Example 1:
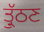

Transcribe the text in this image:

ਤ੍ਰੁੱਠਣ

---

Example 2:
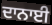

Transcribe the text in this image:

ਦਾਨਾਈ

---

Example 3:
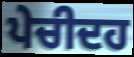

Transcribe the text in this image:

ਪੇਚੀਦਹ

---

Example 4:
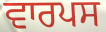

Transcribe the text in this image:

ਵਾਰਪਸ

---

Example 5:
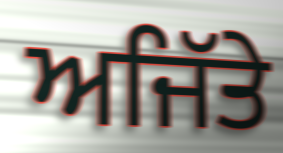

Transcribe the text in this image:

ਅਜਿੱਤੇ